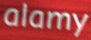
alamy